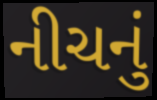
નીચનું